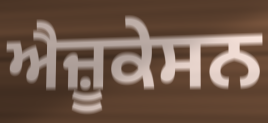
ਐਜ਼ੂਕੇਸਨ